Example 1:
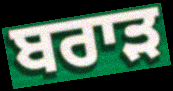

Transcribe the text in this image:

ਬਰਾੜ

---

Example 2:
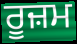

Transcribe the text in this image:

ਰੂਜ਼ਮ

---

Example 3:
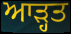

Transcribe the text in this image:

ਆੜ੍ਹਤ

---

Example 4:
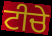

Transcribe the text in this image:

ਟੀਚੇ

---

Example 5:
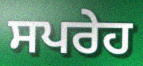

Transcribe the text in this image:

ਸਪਰੇਹ